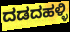
ದಡದಹಳ್ಳಿ